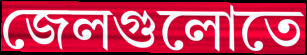
জেলগুলোতে